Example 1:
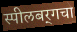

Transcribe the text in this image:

स्पीलबर्गचा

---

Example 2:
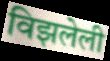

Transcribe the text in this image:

विझलेली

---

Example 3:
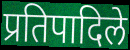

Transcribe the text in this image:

प्रतिपादिले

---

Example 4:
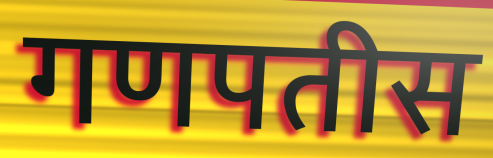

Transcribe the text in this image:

गणपतीस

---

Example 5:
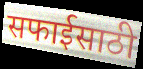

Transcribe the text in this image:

सफाईसाठी